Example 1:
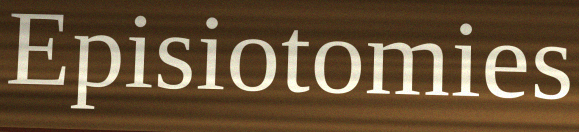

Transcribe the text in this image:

Episiotomies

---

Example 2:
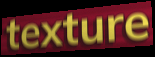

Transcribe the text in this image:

texture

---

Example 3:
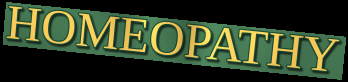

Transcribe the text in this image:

HOMEOPATHY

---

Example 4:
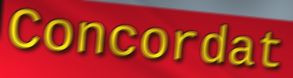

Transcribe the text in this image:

Concordat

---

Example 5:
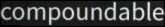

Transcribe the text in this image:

compoundable